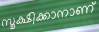
സൂക്ഷിക്കാനാണ്